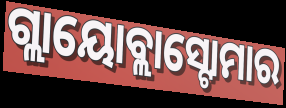
ଗ୍ଲାୟୋବ୍ଲାସ୍ଟୋମାର